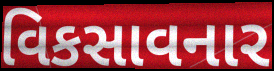
વિકસાવનાર